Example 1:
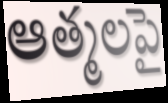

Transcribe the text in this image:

ఆత్మలపై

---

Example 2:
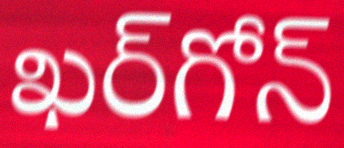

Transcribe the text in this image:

ఖర్‌గోన్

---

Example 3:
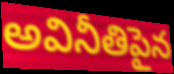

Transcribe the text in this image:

అవినీతిపైన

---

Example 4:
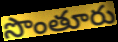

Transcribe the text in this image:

సొంతూరు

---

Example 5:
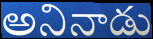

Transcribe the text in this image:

అనినాడు